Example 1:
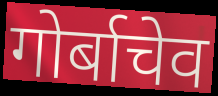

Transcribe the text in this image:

गोर्बाचेव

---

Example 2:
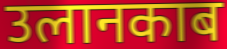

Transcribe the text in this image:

उलानकाब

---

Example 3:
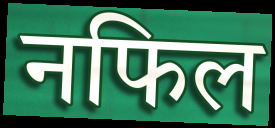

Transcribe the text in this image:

नफिल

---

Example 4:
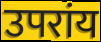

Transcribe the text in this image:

उपरांय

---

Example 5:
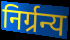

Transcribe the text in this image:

निर्ग्रन्य